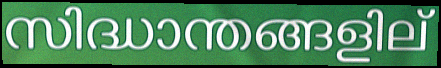
സിദ്ധാന്തങ്ങളില്